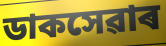
ডাকসেৱাৰ